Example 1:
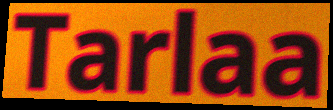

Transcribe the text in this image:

Tarlaa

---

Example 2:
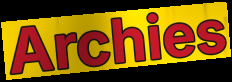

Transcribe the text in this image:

Archies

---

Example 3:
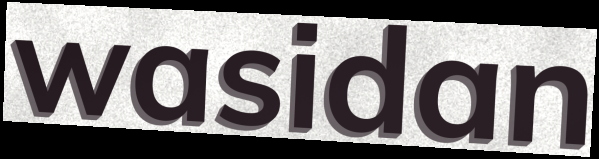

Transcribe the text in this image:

wasidan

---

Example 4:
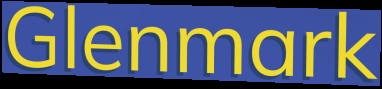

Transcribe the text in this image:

Glenmark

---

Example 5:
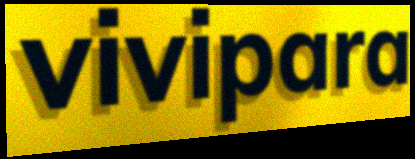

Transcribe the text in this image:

vivipara